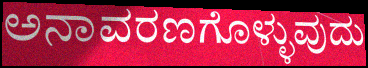
ಅನಾವರಣಗೊಳ್ಳುವುದು